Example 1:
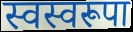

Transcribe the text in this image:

स्वस्वरूपा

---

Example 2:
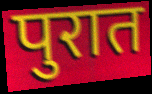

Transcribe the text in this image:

पुरात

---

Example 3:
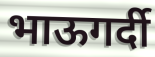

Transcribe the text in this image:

भाऊगर्दी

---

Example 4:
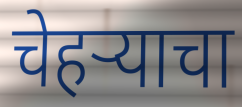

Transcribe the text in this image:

चेहर्‍याचा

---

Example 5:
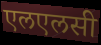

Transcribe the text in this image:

एलएलसी